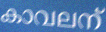
കാവലന്